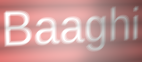
Baaghi